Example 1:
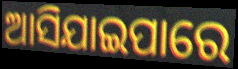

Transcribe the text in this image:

ଆସିଯାଇପାରେ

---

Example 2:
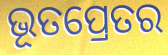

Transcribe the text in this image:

ଭୂତପ୍ରେତର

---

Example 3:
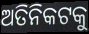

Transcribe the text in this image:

ଅତିନିକଟକୁ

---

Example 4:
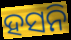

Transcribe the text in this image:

ହସନି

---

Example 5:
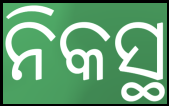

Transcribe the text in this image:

ନିକସ୍ଥ